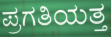
ಪ್ರಗತಿಯತ್ತ